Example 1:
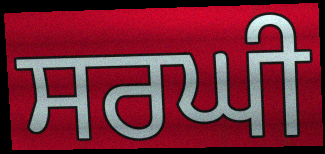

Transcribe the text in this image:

ਸਰਘੀ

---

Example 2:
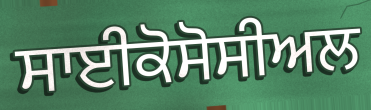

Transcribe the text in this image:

ਸਾਈਕੋਸੋਸੀਅਲ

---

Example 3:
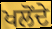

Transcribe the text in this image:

ਖਲੋਂਦੇ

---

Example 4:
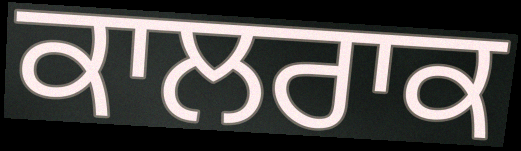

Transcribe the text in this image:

ਕਾਲਰਾਕ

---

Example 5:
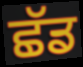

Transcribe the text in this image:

ਛੱਡ